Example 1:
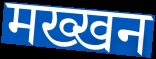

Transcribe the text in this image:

मख्खन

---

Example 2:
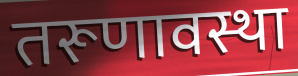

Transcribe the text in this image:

तरूणावस्था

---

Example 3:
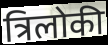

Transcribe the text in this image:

त्रिलोकी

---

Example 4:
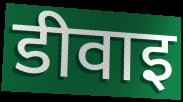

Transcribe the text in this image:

डीवाइ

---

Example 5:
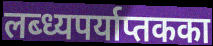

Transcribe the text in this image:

लब्ध्यपर्याप्तकका